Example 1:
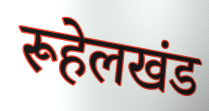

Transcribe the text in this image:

रूहेलखंड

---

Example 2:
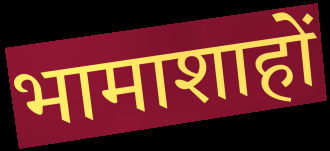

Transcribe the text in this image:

भामाशाहों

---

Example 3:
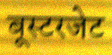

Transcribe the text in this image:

बूस्टरजेट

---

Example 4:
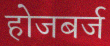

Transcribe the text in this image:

होजबर्ज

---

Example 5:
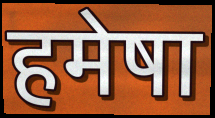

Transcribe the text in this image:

हमेषा